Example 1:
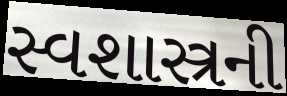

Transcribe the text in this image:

સ્વશાસ્ત્રની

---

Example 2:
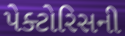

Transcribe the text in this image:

પેક્ટોરિસની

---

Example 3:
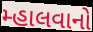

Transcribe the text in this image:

મ્હાલવાનો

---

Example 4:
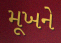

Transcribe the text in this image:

મૂખને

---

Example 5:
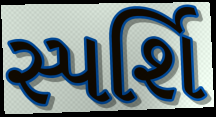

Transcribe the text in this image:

સ્પર્શિ